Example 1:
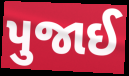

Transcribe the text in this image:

પુજાઈ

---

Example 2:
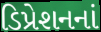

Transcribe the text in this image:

ડિપ્રેશનનાં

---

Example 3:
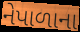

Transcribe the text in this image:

નેપાળાના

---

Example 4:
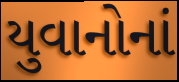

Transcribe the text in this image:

યુવાનોનાં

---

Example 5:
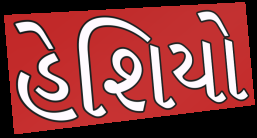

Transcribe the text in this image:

હેશિયો